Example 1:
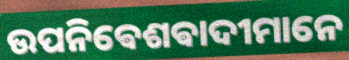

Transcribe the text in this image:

ଉପନିଵେଶଵାଦୀମାନେ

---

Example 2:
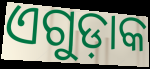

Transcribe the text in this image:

ଏଗୁଡ଼ାକ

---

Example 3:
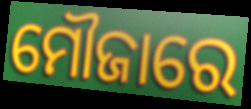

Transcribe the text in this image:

ମୌଜାରେ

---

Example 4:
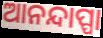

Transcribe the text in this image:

ଆନନ୍ଦାପ୍ପା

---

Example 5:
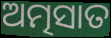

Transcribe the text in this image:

ଅତ୍ମସାତ